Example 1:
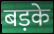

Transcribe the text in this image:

बड़के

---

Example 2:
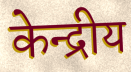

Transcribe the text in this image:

केन्द्रीय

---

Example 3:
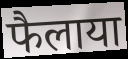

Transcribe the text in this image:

फैलाया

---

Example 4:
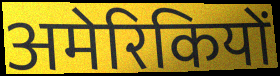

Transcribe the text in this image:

अमेरिकियों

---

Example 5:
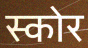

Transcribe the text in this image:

स्कोर